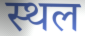
स्‍थल